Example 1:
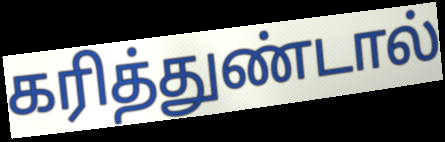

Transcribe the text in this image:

கரித்துண்டால்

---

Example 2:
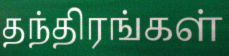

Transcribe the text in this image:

தந்திரங்கள்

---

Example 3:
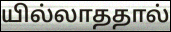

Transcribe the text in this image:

யில்லாததால்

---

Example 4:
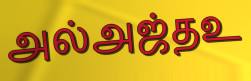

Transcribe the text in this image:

அல்அஜ்தஉ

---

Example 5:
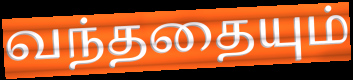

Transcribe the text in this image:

வந்ததையும்